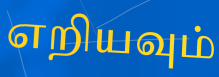
எறியவும்